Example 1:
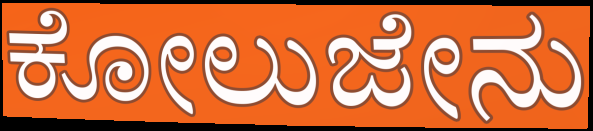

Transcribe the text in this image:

ಕೋಲುಜೇನು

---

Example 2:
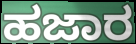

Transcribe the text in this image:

ಹಜಾರ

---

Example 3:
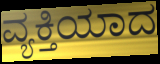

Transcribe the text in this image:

ವ್ಯಕ್ತಿಯಾದ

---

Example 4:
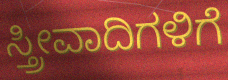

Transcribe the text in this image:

ಸ್ತ್ರೀವಾದಿಗಳಿಗೆ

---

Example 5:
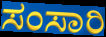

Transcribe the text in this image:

ಸಂಸಾರಿ